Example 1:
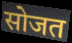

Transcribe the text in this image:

सोजत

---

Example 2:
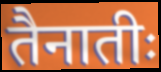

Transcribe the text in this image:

तैनातीः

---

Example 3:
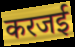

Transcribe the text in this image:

करजई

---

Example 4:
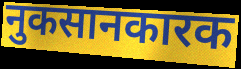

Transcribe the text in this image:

नुकसानकारक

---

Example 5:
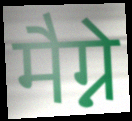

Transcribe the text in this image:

मैग्ने